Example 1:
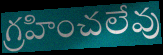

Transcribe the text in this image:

గ్రహించలేవు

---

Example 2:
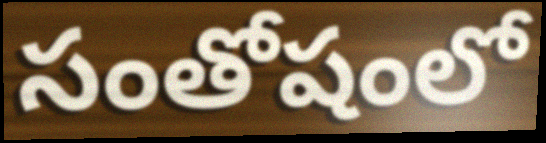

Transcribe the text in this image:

సంతోషంలో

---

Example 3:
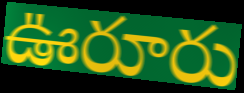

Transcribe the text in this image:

ఊరూరు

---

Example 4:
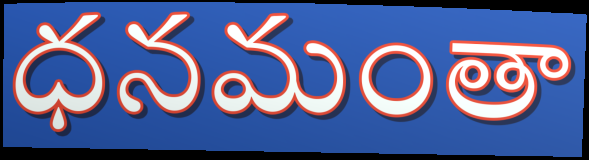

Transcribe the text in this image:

ధనమంతా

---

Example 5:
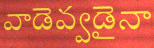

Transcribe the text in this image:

వాడెవ్వడైనా